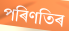
পৰিণতিৰ